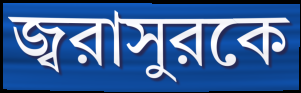
জ্বরাসুরকে